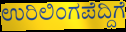
ಉರಿಲಿಂಗಪೆದ್ದಿಗೆ